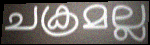
ചക്രമല്ല